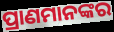
ପ୍ରାଣମାନଙ୍କର